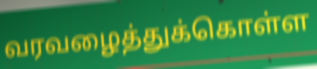
வரவழைத்துக்கொள்ள